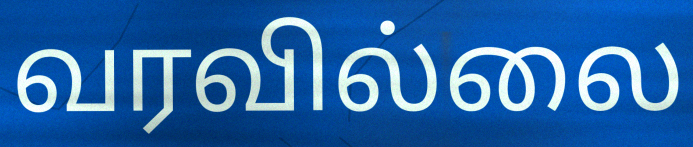
வரவில்லை